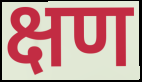
क्षण